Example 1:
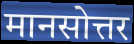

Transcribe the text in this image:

मानसोत्तर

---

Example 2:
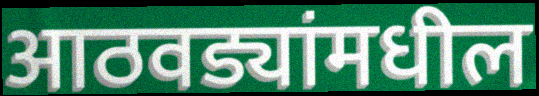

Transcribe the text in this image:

आठवड्यांमधील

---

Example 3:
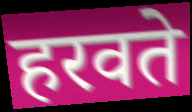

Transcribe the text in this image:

हरवते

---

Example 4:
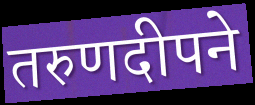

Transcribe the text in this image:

तरुणदीपने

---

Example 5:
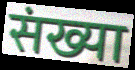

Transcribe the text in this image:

संख्या